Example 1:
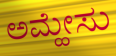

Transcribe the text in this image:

ಅಮ್ಹೇಸು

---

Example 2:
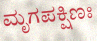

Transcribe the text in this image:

ಮೃಗಪಕ್ಷಿಣಃ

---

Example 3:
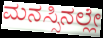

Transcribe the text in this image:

ಮನಸ್ಸಿನಲ್ಲೇ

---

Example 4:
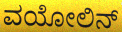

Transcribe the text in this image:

ವಯೋಲಿನ್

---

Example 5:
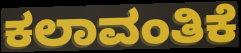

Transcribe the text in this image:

ಕಲಾವಂತಿಕೆ